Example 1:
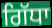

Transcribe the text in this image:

ਗਿੱਧਾ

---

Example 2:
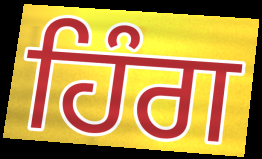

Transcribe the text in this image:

ਹਿੰਗ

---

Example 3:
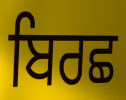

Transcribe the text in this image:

ਬਿਰਛ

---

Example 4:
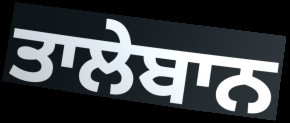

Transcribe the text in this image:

ਤਾਲੇਬਾਨ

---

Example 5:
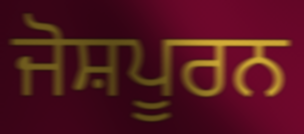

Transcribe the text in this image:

ਜੋਸ਼ਪੂਰਨ